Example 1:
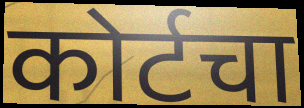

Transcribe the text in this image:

कोर्टचा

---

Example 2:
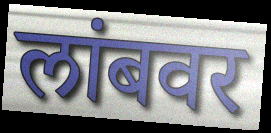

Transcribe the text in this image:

लांबवर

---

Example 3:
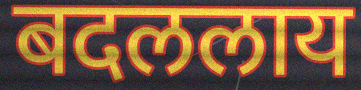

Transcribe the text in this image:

बदललाय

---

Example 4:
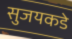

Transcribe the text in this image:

सुजयकडे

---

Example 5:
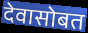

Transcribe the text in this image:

देवासोबत